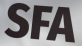
SFA